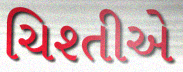
ચિશ્તીએ